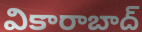
వికారాబాద్